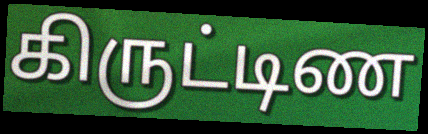
கிருட்டிண